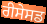
ਰੀਸੇਸਡ